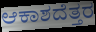
ಆಕಾಶದೆತ್ತರ